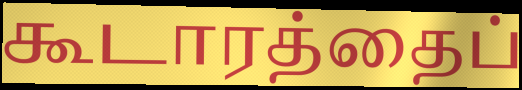
கூடாரத்தைப்